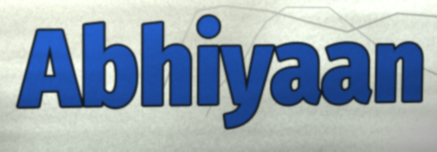
Abhiyaan